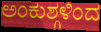
ಅಂಕುಶ್ಗಳಿಂದ